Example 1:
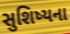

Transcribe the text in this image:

સુશિષ્યના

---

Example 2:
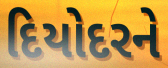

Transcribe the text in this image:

દિયોદરને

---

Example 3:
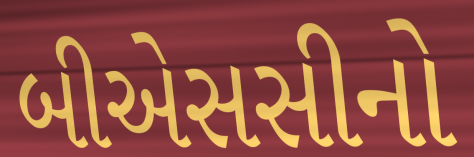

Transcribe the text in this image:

બીએસસીનો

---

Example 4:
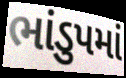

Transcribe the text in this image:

ભાંડુપમાં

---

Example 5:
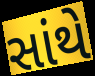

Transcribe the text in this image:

સાંથે